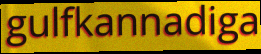
gulfkannadiga